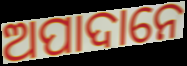
ଅପାଦାନେ